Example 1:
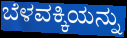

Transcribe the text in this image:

ಬೆಳವಕ್ಕಿಯನ್ನು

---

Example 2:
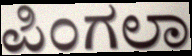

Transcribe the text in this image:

ಪಿಂಗಲಾ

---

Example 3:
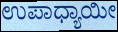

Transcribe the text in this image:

ಉಪಾಧ್ಯಾಯೀ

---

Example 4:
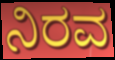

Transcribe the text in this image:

ನಿರವ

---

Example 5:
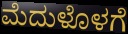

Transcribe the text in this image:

ಮೆದುಳೊಳಗೆ